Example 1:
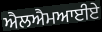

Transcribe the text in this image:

ਐਲਐਮਆਈਏ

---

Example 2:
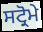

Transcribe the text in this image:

ਸਟ੍ਰੋਮੇ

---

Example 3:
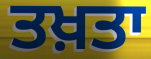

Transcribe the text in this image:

ਤਖ਼ਤਾ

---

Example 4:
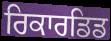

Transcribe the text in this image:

ਰਿਕਾਰਡਿਡ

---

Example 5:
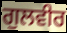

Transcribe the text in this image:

ਗੁਲਵੀਰ